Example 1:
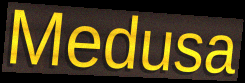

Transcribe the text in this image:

Medusa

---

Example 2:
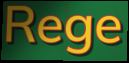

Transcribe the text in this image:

Rege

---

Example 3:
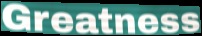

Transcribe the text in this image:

Greatness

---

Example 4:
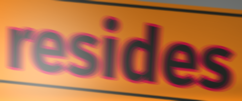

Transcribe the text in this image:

resides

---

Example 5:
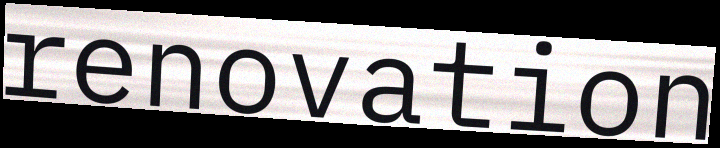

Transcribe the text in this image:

renovation